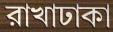
রাখাঢাকা